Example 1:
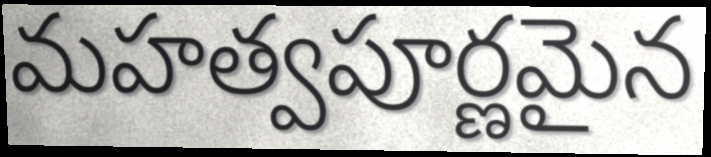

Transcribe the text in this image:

మహత్వపూర్ణమైన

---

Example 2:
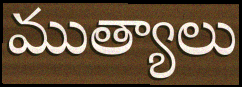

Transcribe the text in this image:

ముత్యాలు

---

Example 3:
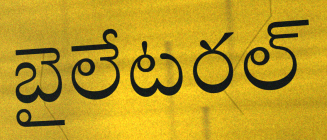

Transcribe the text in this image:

బైలేటరల్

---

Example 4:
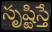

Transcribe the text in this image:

సృష్టిస్తే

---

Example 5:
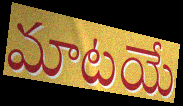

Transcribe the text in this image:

మాటయే